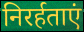
निरर्हताएं